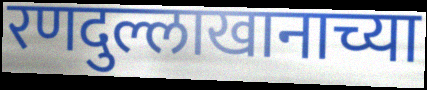
रणदुल्लाखानाच्या